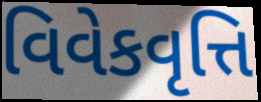
વિવેકવૃત્તિ